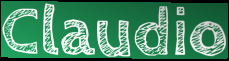
Claudio